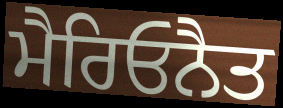
ਮੈਰਿਓਨੈਤ